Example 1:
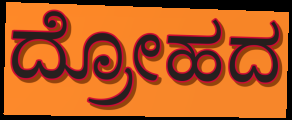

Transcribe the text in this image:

ದ್ರೋಹದ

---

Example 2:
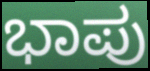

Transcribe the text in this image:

ಭಾಪು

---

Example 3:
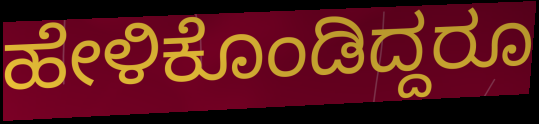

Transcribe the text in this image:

ಹೇಳಿಕೊಂಡಿದ್ದರೂ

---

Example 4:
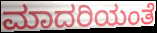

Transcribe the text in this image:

ಮಾದರಿಯಂತೆ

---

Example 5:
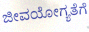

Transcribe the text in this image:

ಜೀವಯೋಗ್ಯತೆಗೆ